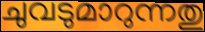
ചുവടുമാറുന്നതു